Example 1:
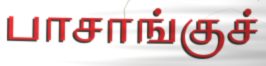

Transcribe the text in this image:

பாசாங்குச்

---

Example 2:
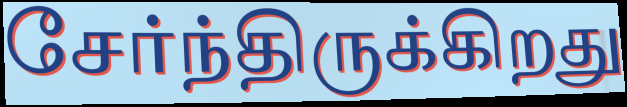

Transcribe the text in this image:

சேர்ந்திருக்கிறது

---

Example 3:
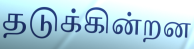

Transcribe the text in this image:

தடுக்கின்றன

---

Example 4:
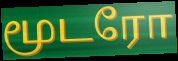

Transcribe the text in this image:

மூடரோ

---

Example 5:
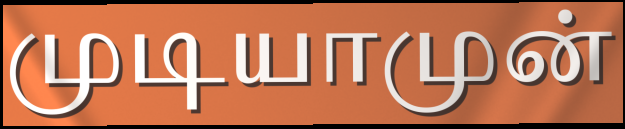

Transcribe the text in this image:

முடியாமுன்